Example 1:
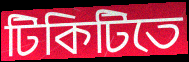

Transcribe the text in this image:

টিকিটিতে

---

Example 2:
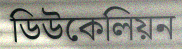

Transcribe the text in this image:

ডিউকেলিয়ন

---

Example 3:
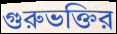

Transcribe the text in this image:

গুরুভক্তির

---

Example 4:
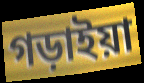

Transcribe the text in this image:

গড়াইয়া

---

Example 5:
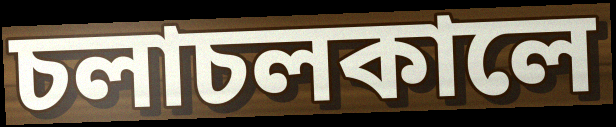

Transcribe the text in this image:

চলাচলকালে